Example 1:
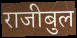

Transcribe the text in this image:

राजीबुल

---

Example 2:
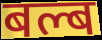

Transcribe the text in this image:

बल्ब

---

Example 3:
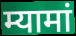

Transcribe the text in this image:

म्यामां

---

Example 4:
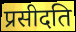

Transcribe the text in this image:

प्रसीदति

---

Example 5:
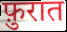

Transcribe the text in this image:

फ़ुरात